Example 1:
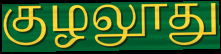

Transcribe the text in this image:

குழலூது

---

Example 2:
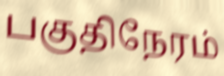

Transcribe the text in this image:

பகுதிநேரம்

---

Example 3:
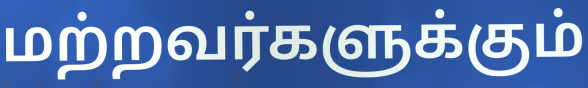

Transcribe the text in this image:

மற்றவர்களுக்கும்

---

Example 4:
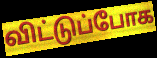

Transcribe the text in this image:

விட்டுப்போக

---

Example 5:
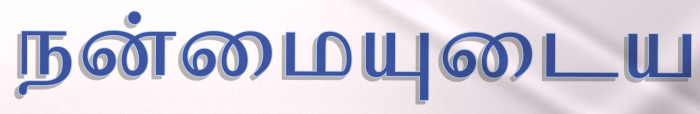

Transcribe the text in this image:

நன்மையுடைய